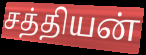
சத்தியன்